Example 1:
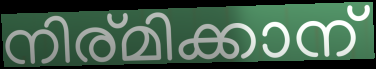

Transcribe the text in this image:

നിര്മിക്കാന്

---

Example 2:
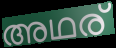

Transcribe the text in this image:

അഥര്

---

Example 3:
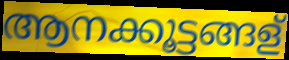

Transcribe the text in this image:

ആനക്കൂട്ടങ്ങള്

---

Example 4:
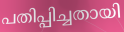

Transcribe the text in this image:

പതിപ്പിച്ചതായി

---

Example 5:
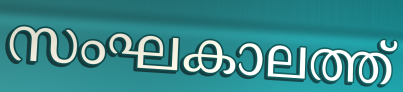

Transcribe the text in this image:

സംഘകാലത്ത്